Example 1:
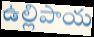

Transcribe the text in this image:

ఉల్లిపాయ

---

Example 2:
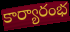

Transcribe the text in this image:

కార్యారంభ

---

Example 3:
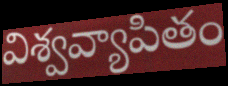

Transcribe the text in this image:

విశ్వవ్యాపితం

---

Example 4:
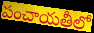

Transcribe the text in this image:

పంచాయతీలో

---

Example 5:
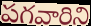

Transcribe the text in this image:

పగవారిని